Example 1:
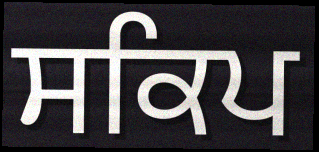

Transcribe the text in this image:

ਸਕਿਪ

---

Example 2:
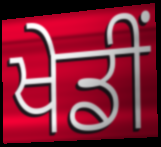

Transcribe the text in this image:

ਖੇਡੀਂ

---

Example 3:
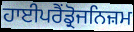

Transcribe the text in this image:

ਹਾਈਪਰੈਂਡ੍ਰੋਜਨਿਜ਼ਮ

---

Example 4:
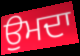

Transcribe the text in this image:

ਉਮਦਾ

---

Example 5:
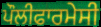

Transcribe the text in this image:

ਪੌਲੀਫਾਰਮੇਸੀ